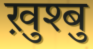
ख़ुश्बु